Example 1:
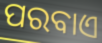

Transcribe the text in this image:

ପରବାଏ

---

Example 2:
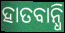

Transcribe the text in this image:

ହାତବାନ୍ଧି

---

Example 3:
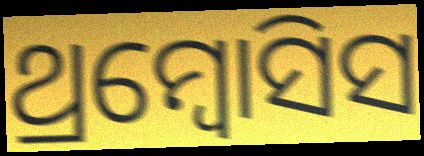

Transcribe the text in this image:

ଥ୍ରମ୍ବୋସିସ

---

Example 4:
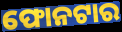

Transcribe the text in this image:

ଫୋନଟାର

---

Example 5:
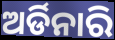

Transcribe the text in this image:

ଅର୍ଡିନାରି